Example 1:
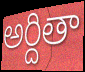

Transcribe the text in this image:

అర్దితా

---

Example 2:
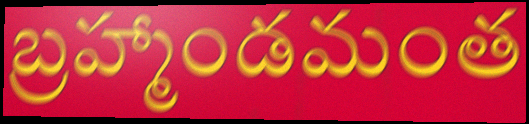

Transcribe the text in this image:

బ్రహ్మాండమంత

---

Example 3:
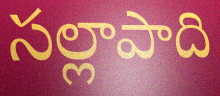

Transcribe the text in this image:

సల్లాపాది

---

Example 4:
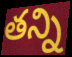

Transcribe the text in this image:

తన్ని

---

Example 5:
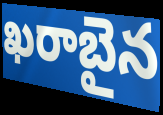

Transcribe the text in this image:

ఖరాబైన